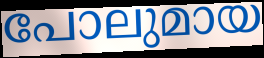
പോലുമായ